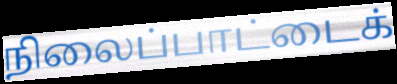
நிலைப்பாட்டைக்